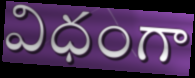
విధంగా